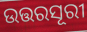
ଉତ୍ତରସୂରୀ